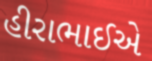
હીરાભાઈએ